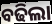
ବଢିଲା